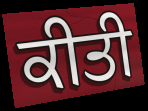
ਕੀਤੀ